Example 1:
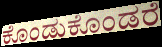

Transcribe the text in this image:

ಕೊಂಡುಕೊಂಡರೆ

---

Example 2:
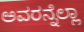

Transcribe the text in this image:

ಅವರನ್ನೆಲ್ಲಾ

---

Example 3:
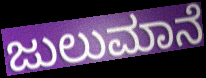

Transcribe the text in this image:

ಜುಲುಮಾನೆ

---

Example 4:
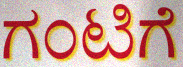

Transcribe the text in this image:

ಗಂಟಿಗೆ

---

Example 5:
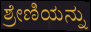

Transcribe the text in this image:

ಶ್ರೇಣಿಯನ್ನು